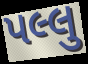
પલ્લુ